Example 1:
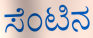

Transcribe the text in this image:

ಸೆಂಟಿನ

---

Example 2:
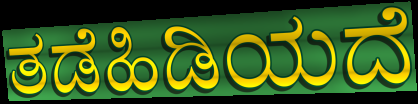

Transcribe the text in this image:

ತಡೆಹಿಡಿಯದೆ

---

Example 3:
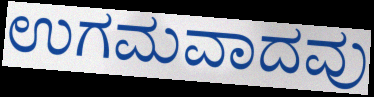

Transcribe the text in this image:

ಉಗಮವಾದವು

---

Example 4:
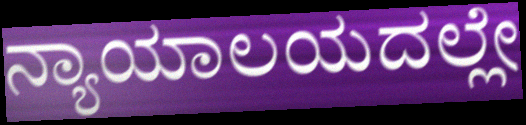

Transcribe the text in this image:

ನ್ಯಾಯಾಲಯದಲ್ಲೇ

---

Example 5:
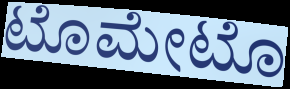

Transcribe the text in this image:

ಟೊಮೇಟೊ